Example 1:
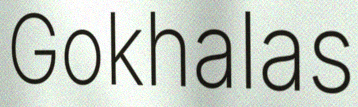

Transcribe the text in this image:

Gokhalas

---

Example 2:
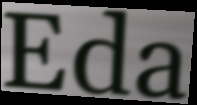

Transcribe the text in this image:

Eda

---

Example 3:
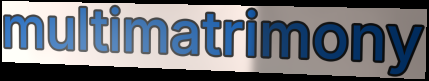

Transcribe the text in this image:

multimatrimony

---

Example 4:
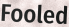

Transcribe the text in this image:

Fooled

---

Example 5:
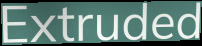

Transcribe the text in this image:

Extruded